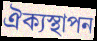
ঐক্যস্থাপন